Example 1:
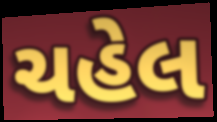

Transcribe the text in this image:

ચહેલ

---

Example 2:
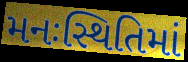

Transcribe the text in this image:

મનઃસ્થિતિમાં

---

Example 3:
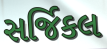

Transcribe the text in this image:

સર્જિકલ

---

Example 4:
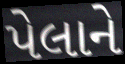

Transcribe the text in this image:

પેલાને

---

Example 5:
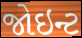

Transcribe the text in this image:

જોઇન્ટ